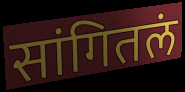
सांगितलं